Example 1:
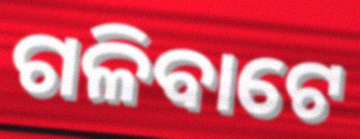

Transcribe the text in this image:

ଗଳିବାଟେ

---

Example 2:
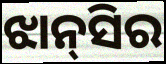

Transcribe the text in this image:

ଝାନ୍‌ସିର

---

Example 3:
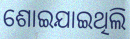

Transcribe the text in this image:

ଶୋଇଯାଇଥିଲି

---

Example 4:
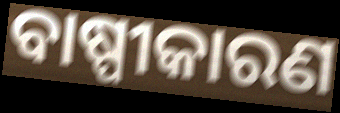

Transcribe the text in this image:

ବାଷ୍ପୀକାରଣ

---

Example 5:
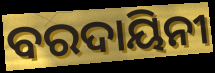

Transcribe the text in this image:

ବରଦାୟିନୀ